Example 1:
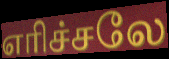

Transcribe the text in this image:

எரிச்சலே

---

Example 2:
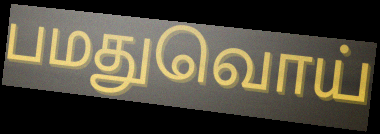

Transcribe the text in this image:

பமதுவொய்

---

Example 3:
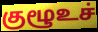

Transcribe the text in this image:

குழூஉச்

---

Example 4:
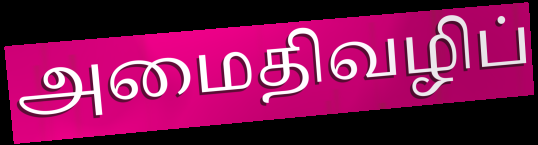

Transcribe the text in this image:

அமைதிவழிப்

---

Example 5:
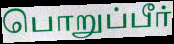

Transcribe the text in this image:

பொறுப்பீர்